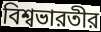
বিশ্বভারতীর